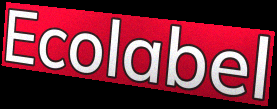
Ecolabel